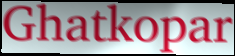
Ghatkopar